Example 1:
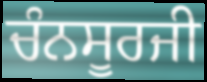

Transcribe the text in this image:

ਚੰਨਸੂਰਜੀ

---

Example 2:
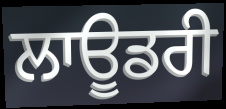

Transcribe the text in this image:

ਲਾਊਡਰੀ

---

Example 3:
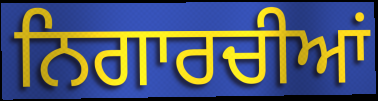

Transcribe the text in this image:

ਨਿਗਾਰਚੀਆਂ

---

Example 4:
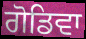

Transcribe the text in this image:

ਗੋਡਿਵਾ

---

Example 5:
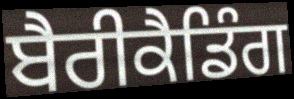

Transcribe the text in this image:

ਬੈਰੀਕੈਡਿੰਗ